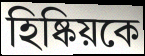
হিষ্কিয়কে